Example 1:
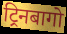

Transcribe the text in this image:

ट्रिनबागो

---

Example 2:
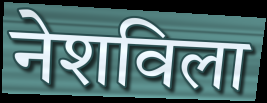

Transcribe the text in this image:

नेशविला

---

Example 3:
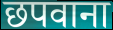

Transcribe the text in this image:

छपवाना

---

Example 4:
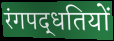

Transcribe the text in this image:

रंगपद्धतियों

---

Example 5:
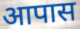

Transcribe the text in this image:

आपास